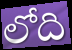
లోది